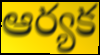
ఆర్యక